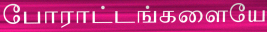
போராட்டங்களையே